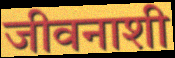
जीवनाशी